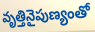
వృత్తినైపుణ్యంతో